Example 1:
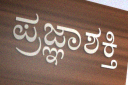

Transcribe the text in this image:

ಪ್ರಜ್ಞಾಶಕ್ತಿ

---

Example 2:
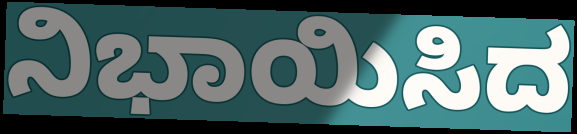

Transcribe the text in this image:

ನಿಭಾಯಿಸಿದ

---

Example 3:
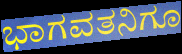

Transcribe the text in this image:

ಭಾಗವತನಿಗೂ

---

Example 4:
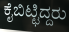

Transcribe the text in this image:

ಕೈಬಿಟ್ಟಿದ್ದರು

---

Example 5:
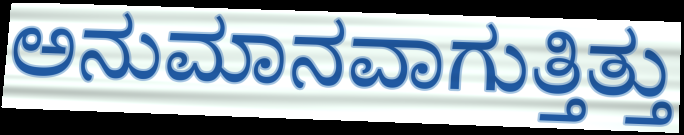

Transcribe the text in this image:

ಅನುಮಾನವಾಗುತ್ತಿತ್ತು